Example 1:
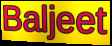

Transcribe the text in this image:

Baljeet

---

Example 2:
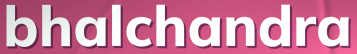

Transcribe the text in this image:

bhalchandra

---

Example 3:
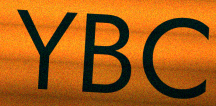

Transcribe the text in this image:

YBC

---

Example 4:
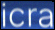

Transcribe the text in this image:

icra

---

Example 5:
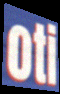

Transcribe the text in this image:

oti